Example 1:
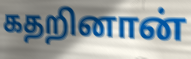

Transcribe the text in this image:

கதறினான்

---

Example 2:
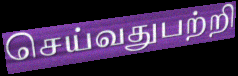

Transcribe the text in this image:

செய்வதுபற்றி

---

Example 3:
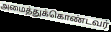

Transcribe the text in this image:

அமைத்துக்கொண்டவர்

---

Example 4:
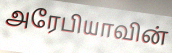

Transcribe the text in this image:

அரேபியாவின்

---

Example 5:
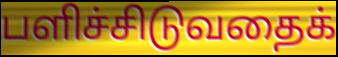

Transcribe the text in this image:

பளிச்சிடுவதைக்